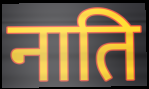
नाति